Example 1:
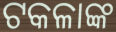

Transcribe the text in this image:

ଟକଳାଙ୍କ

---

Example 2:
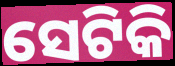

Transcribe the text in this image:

ସେଟିକି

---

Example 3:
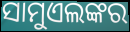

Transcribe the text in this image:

ସାମୁଏଲଙ୍କର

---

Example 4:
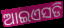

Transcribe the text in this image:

ଆଇଏସଡି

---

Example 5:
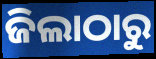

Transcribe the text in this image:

ଜିଲାଠାରୁ